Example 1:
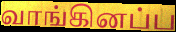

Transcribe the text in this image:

வாங்கினப்ப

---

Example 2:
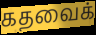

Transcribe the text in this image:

கதவைக்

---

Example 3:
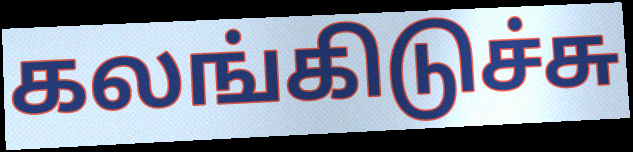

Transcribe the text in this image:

கலங்கிடுச்சு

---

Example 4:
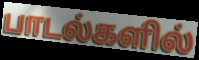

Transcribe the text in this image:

பாடல்களில்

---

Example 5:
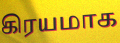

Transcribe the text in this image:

கிரயமாக